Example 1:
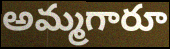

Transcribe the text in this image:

అమ్మగారూ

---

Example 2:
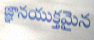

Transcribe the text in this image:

జ్ఞానయుక్తమైన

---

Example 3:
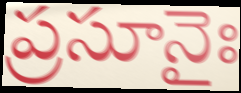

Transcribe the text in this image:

ప్రసూనైః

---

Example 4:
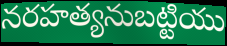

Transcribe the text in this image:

నరహత్యనుబట్టియు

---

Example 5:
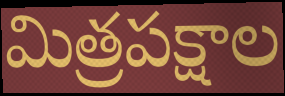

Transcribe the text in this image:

మిత్రపక్షాల